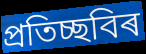
প্ৰতিচ্ছবিৰ